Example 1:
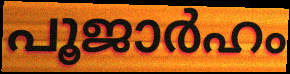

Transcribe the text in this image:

പൂജാർഹം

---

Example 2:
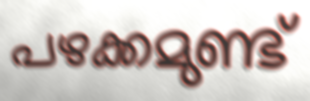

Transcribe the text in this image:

പഴക്കമുണ്ട്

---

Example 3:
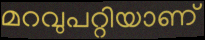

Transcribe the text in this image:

മറവുപറ്റിയാണ്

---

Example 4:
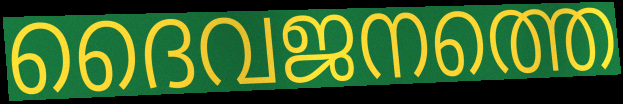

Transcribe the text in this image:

ദൈവജനത്തെ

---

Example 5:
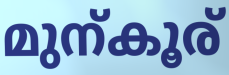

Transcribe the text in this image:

മുന്കൂര്